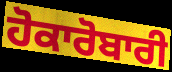
ਹੋਕਾਰੋਬਾਰੀ